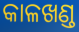
କାଳଖଣ୍ଡ